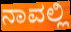
ನಾವಲ್ಲಿ